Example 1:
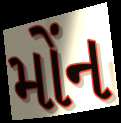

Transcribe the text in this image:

મોંન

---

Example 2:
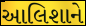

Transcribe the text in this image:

આલિશાને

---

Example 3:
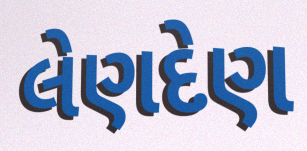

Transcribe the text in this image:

લેણદેણ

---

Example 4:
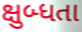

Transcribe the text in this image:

ક્ષુબ્ધતા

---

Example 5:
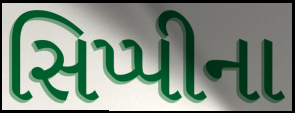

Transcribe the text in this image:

સિપ્પીના